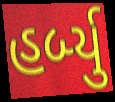
હર્બ્યુ